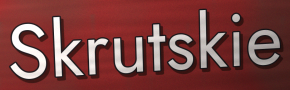
Skrutskie